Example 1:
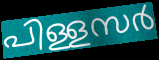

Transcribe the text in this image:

പിള്ളസർ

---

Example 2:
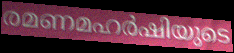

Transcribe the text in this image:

രമണമഹർഷിയുടെ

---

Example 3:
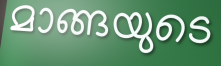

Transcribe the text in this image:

മാങ്ങയുടെ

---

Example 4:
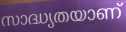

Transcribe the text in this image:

സാദ്ധ്യതയാണ്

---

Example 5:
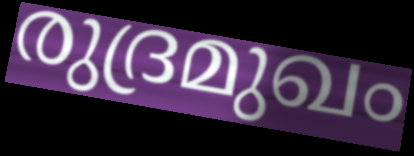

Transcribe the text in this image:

രുദ്രമുഖം